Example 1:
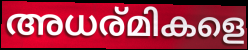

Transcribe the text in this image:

അധര്മികളെ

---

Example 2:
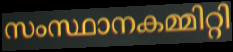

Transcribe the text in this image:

സംസ്ഥാനകമ്മിറ്റി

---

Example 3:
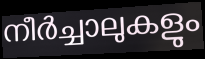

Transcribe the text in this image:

നീർച്ചാലുകളും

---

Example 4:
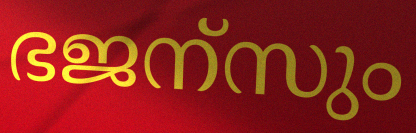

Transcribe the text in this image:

ഭജന്സും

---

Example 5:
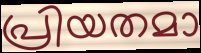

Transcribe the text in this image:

പ്രിയതമാ